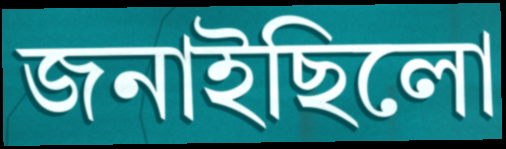
জনাইছিলো